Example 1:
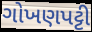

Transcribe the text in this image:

ગોખણપટ્ટી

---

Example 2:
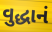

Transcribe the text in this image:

વુદ્ધાનં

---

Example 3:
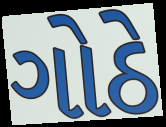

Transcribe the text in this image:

ગોઠે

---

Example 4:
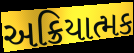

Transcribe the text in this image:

અક્રિયાત્મક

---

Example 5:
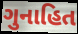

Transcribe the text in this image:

ગુનાહિત